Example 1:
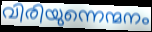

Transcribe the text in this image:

വിരിയുന്നെന്മനം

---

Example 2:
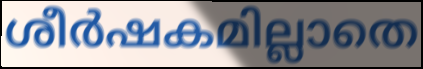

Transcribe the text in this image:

ശീർഷകമില്ലാതെ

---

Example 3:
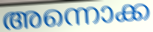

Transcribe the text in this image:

അന്നൊക്ക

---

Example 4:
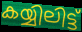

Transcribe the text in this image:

കയ്യിലിട്ട്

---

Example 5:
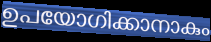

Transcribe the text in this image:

ഉപയോഗിക്കാനാകും